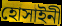
হোসাইনী